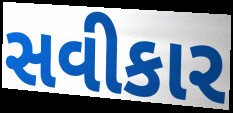
સવીકાર